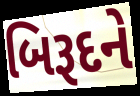
બિરૂદને